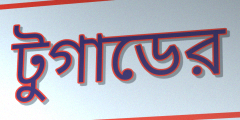
টুগাডের